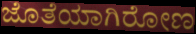
ಜೊತೆಯಾಗಿರೋಣ